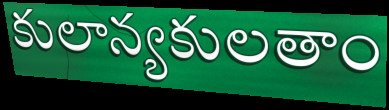
కులాన్యకులతాం